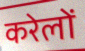
करेलों